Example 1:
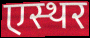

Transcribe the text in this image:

एस्थर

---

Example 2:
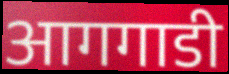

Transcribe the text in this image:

आगगाडी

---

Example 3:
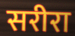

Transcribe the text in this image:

सरीरा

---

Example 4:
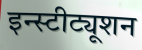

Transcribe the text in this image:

इन्स्टीट्यूशन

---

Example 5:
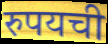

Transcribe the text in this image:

रुपयची